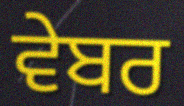
ਵੇਬਰ